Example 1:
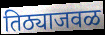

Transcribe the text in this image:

तिठ्याजवळ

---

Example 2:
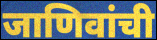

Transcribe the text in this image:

जाणिवांची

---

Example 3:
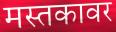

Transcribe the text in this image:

मस्तकावर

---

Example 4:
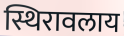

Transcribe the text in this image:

स्थिरावलाय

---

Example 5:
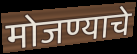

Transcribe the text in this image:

मोजण्याचे